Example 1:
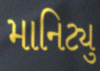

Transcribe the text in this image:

માનિટ્યુ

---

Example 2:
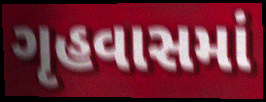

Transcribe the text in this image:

ગૃહવાસમાં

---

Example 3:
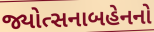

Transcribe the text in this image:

જ્યોત્સનાબહેનનો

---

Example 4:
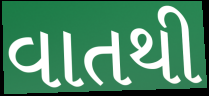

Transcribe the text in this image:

વાતથી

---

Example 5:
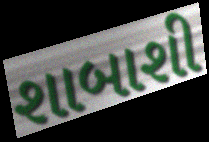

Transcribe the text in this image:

શાબાશી